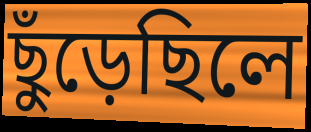
ছুঁড়েছিলে